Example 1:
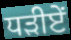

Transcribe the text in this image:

ਧੜੀਏਂ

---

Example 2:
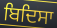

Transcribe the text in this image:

ਬਿਦਿਸਾ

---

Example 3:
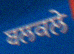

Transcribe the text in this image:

ਬਲਕਲੇ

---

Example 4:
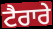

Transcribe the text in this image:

ਟੈਰਾਰੇ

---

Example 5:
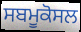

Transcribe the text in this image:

ਸਬਮੂਕੋਸਲ